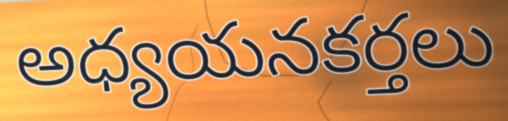
అధ్యయనకర్తలు